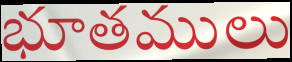
భూతములు